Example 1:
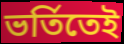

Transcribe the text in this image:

ভর্তিতেই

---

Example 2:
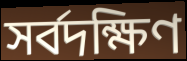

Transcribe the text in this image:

সর্বদক্ষিণ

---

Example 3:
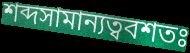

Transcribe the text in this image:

শব্দসামান্যত্ববশতঃ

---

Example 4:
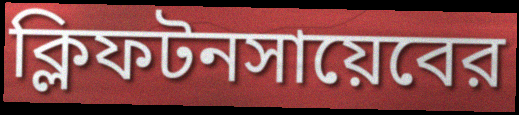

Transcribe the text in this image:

ক্লিফটনসায়েবের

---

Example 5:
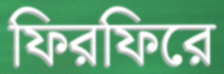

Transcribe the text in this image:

ফিরফিরে